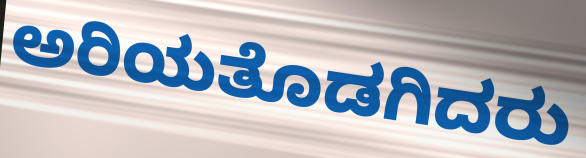
ಅರಿಯತೊಡಗಿದರು